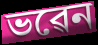
ভৱেন